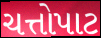
ચત્તોપાટ